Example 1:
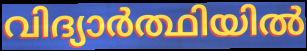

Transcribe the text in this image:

വിദ്യാർത്ഥിയിൽ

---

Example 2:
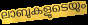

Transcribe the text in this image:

ലാബുകളുടെയും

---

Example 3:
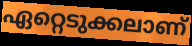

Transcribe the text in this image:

ഏറ്റെടുക്കലാണ്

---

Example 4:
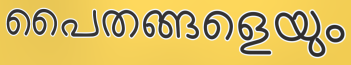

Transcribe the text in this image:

പൈതങ്ങളെയും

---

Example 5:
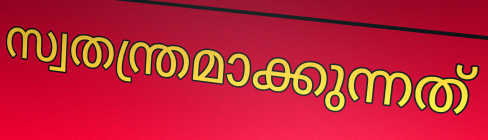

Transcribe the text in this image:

സ്വതന്ത്രമാക്കുന്നത്